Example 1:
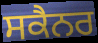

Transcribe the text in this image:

ਸਕੈਨਰ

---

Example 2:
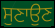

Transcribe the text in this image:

ਸੁਣਾਉਣ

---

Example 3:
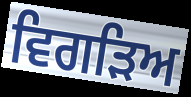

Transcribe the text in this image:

ਵਿਗੜਿਅ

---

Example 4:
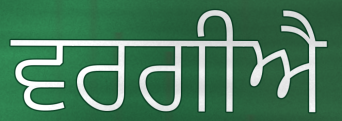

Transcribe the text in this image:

ਵਰਗੀਐ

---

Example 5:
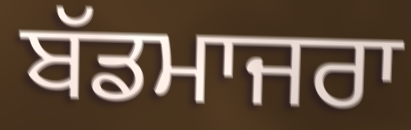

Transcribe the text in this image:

ਬੱਡਮਾਜਰਾ